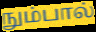
நும்பால்